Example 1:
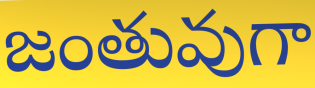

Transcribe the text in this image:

జంతువుగా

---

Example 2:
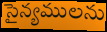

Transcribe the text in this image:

సైన్యములను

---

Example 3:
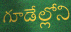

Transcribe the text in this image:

గూడేల్లోని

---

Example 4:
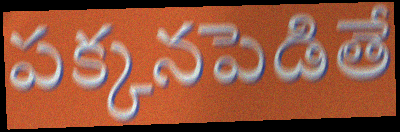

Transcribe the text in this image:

పక్కనపెడితే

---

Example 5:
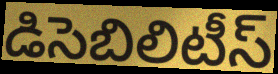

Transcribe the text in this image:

డిసెబిలిటీస్